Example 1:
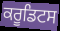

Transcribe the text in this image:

ਕਰੂਡਿਟਸ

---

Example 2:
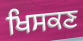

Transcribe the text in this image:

ਖਿਸਕਣ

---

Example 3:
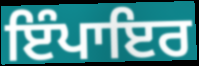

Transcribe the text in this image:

ਇੰਪਾਇਰ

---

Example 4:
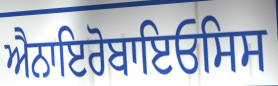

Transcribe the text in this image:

ਐਨਾਇਰੋਬਾਇਓਸਿਸ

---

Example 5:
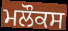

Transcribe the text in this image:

ਮਲੌਕਸ